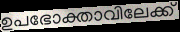
ഉപഭോക്താവിലേക്ക്